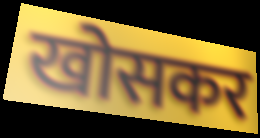
खोसकर